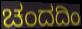
ಚಂದದಿಂ